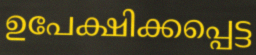
ഉപേക്ഷിക്കപ്പെട്ട